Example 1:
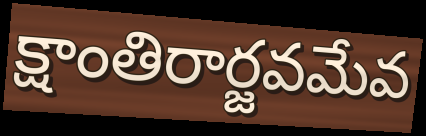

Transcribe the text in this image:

క్షాంతిరార్జవమేవ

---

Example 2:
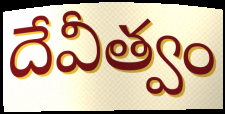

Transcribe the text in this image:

దేవీత్వం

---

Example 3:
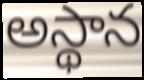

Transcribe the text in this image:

అస్థాన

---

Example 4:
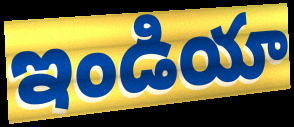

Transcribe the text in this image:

ఇండియా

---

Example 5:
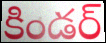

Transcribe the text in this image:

కిండర్